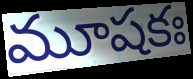
మూషకః